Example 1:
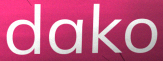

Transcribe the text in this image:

dako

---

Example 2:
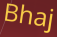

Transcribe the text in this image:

Bhaj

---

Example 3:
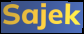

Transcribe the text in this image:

Sajek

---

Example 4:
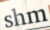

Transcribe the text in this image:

shm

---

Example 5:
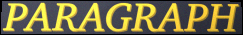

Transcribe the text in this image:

PARAGRAPH